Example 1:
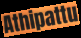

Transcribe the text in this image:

Athipattu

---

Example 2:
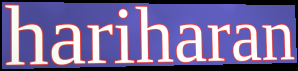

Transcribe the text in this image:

hariharan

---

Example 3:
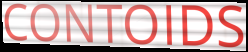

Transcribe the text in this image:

CONTOIDS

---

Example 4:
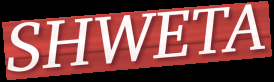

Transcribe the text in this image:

SHWETA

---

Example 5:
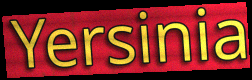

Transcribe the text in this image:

Yersinia